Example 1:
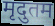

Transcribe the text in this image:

मृदुतम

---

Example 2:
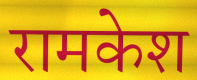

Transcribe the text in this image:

रामकेश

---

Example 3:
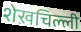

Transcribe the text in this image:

शेख़चिल्ली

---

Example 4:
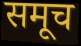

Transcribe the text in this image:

समूच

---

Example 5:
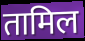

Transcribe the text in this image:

तामिल